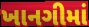
ખાનગીમાં